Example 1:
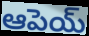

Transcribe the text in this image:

ఆపెయ్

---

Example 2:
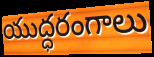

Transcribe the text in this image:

యుద్ధరంగాలు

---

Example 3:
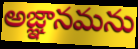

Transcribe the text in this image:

అజ్ఞానమను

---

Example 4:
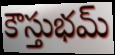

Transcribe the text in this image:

కౌస్తుభమ్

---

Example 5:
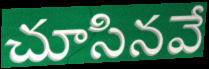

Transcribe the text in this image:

చూసినవే